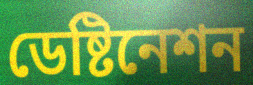
ডেষ্টিনেশন